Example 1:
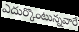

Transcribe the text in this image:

ఎదుర్కొంటున్నవారే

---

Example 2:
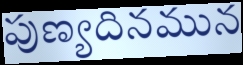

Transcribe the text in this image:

పుణ్యదినమున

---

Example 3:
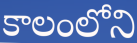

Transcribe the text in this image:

కాలంలోని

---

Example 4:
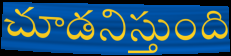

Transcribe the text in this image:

చూడనిస్తుంది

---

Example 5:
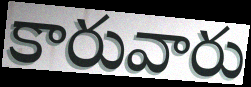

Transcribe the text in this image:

కారువారు